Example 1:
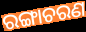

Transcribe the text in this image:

ରଙ୍ଗାଚରଣ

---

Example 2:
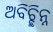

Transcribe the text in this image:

ଅବିଚ୍ଛିନ୍ନ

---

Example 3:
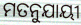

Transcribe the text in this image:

ମତନୁଯାୟୀ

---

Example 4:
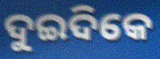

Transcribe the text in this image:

ଦୁଇଦିକେ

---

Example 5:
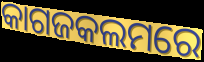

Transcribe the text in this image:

କାଗଜକଲମରେ